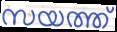
സയത്ത്